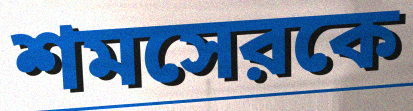
শমসেরকে